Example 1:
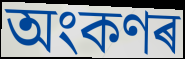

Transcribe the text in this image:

অংকণৰ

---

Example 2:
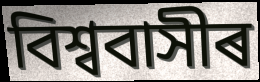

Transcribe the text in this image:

বিশ্ববাসীৰ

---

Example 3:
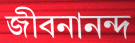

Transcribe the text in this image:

জীবনানন্দ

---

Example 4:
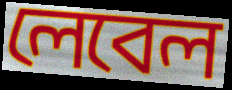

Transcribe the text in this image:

লেবেল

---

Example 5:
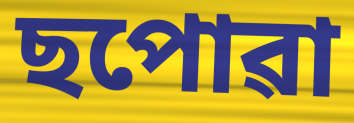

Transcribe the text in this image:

ছপোৱা